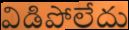
విడిపోలేదు